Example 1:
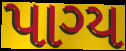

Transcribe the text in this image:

પાગ્ય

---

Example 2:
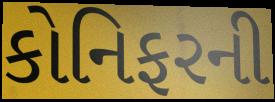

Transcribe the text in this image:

કોનિફરની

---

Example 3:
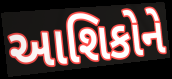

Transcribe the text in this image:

આશિકોને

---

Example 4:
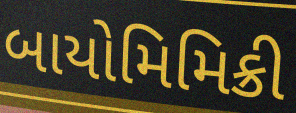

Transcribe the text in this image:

બાયોમિમિક્રી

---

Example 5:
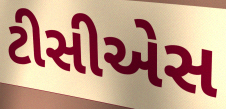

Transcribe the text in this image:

ટીસીએસ